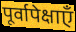
पूर्वापेक्षाएँ